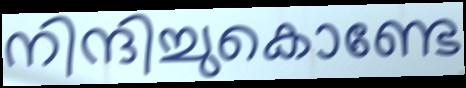
നിന്ദിച്ചുകൊണ്ടേ